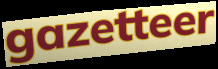
gazetteer